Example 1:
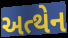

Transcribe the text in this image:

અત્થેન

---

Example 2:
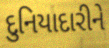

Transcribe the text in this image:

દુનિયાદારીને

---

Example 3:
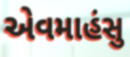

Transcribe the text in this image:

એવમાહંસુ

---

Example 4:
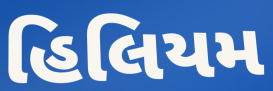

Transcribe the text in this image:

હિલિયમ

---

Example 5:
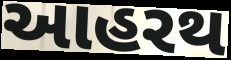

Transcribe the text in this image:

આહરથ